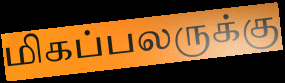
மிகப்பலருக்கு